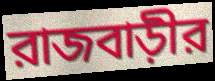
রাজবাড়ীর